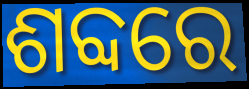
ଶବ୍ଦରେ